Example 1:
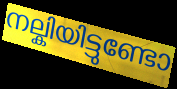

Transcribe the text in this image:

നല്കിയിട്ടുണ്ടോ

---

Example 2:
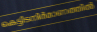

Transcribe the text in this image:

കെട്ടിടനിർമാണത്തിൽ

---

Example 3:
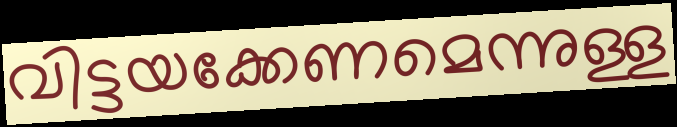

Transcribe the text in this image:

വിട്ടയക്കേണമെന്നുള്ള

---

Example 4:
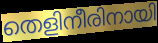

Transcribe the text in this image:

തെളിനീരിനായി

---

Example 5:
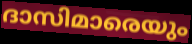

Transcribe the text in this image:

ദാസിമാരെയും